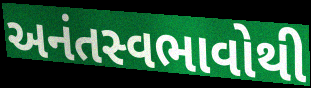
અનંતસ્વભાવોથી